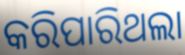
କରିପାରିଥଲା